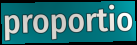
proportio